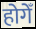
होगेँ